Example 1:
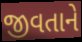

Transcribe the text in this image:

જીવતાને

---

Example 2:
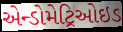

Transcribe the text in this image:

એન્ડોમેટ્રિઓઇડ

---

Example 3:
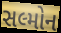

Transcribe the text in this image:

સલ્મોન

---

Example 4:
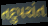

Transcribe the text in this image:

તદુપરાંત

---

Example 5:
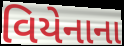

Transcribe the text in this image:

વિયેનાના